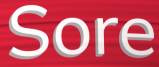
Sore